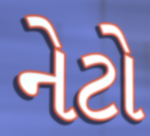
નેટો